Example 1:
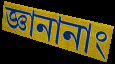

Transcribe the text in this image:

জ্ঞানানাং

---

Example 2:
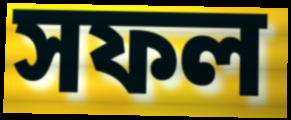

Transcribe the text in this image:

সফল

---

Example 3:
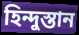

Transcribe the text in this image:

হিন্দুস্তান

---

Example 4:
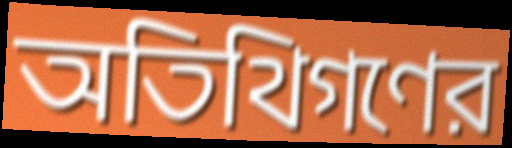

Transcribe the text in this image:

অতিথিগণের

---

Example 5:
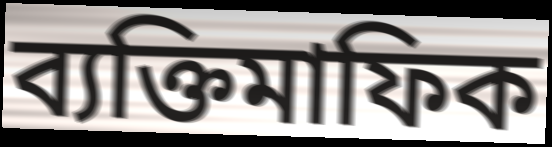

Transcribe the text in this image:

ব্যক্তিমাফিক